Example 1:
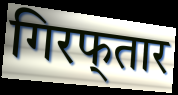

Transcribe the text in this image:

गिरफ्‌तार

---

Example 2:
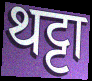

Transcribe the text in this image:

थट्टा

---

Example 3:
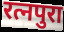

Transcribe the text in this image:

रत्नपुरा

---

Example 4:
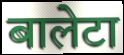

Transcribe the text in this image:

बालेटा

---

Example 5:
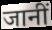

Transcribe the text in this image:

जानीं